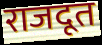
राजदूत